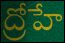
ద్రోహే